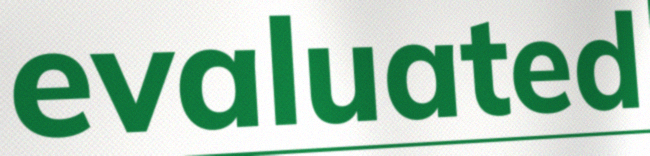
evaluated